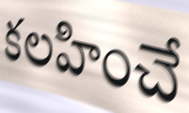
కలహించే